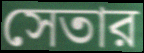
সেতার